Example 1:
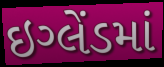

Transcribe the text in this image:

ઇગ્લેંડમાં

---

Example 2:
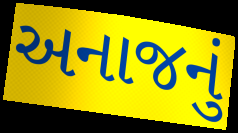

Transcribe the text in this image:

અનાજનું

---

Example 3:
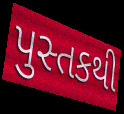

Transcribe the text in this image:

પુસ્તકથી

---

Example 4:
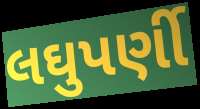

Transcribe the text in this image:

લઘુપર્ણી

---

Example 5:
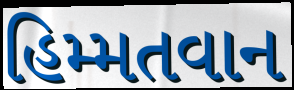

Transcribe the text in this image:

હિમ્મતવાન